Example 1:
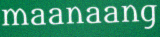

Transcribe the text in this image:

maanaang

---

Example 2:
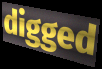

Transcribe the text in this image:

digged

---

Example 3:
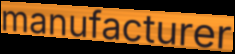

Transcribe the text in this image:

manufacturer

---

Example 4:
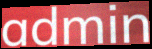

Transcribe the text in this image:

admin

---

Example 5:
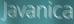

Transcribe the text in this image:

Javanica